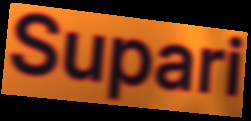
Supari